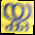
യ്ക്കു